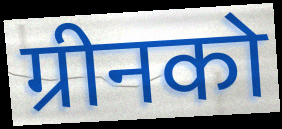
ग्रीनको